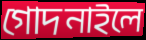
গোদনাইলে